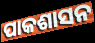
ପାକଶାସନ